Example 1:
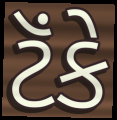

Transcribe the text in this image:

ટૅંકે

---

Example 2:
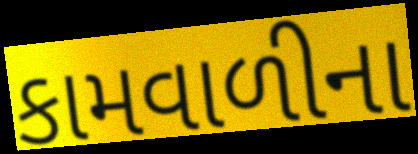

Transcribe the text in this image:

કામવાળીના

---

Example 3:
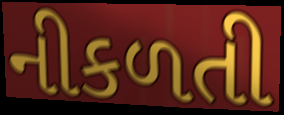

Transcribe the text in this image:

નીકળતી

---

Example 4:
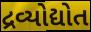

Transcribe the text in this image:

દ્રવ્યોદ્યોત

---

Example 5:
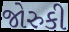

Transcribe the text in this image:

જોરુકી